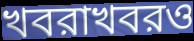
খবরাখবরও